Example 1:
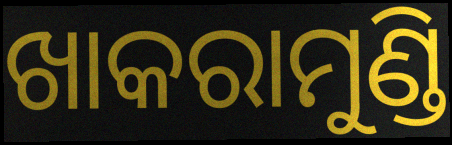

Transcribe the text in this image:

ଖାକରାମୁଣ୍ଡି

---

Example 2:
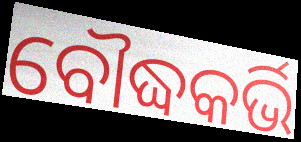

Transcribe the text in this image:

ବୌଦ୍ଧକର୍ଭି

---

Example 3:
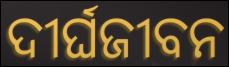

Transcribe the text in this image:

ଦୀର୍ଘଜୀବନ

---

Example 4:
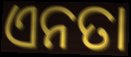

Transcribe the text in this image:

ଏନତା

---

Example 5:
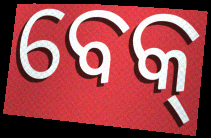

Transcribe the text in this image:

ବେକ୍